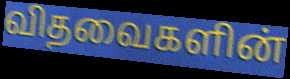
விதவைகளின்